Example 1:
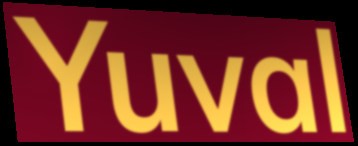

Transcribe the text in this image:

Yuval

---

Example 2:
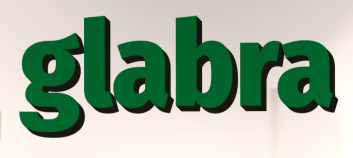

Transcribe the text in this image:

glabra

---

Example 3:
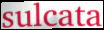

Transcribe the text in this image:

sulcata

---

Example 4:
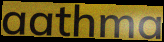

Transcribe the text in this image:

aathma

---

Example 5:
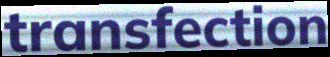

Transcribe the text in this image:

transfection